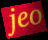
jeo